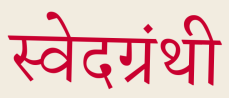
स्वेदग्रंथी